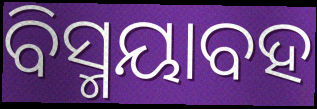
ବିସ୍ମୟାବହ